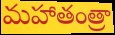
మహాతంత్రా